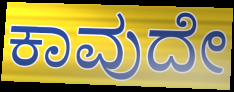
ಕಾವುದೇ